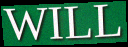
WILL